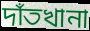
দাঁতখানা